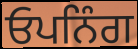
ਓਪਨਿੰਗ